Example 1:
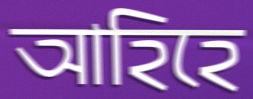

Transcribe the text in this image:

আহিহে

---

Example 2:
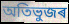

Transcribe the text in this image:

অতিভুজৰ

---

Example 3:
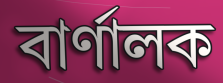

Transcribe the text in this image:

বাৰ্ণালক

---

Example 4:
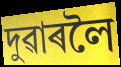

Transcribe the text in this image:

দুৱাৰলৈ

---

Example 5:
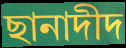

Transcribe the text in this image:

ছানাদীদ